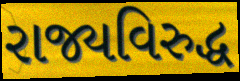
રાજ્યવિરુદ્ધ